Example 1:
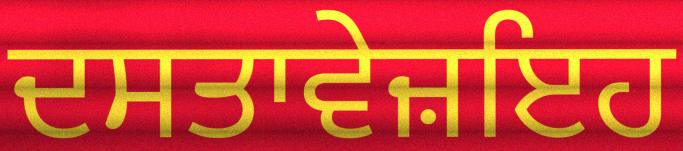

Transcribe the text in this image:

ਦਸਤਾਵੇਜ਼ਇਹ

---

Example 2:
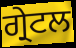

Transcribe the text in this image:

ਗ੍ਰੇਟਲ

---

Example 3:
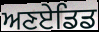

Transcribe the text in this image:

ਅਣਏਡਿਡ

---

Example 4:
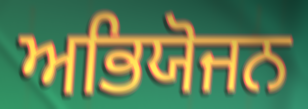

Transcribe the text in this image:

ਅਭਿਯੋਜਨ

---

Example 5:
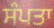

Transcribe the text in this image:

ਸੰਪਤਾ